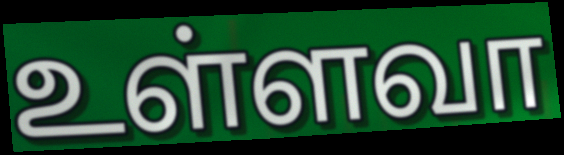
உள்ளவா